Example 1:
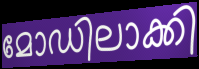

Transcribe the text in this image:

മോഡിലാക്കി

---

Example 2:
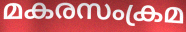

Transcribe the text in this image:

മകരസംക്രമ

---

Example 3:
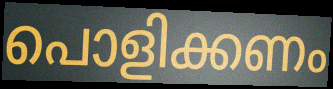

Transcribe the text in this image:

പൊളിക്കണം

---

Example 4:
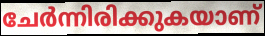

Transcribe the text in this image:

ചേർന്നിരിക്കുകയാണ്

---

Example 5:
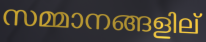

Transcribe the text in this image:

സമ്മാനങ്ങളില്